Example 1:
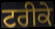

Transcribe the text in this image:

ਟਰੀਕੇ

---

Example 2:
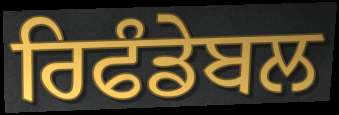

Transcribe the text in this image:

ਰਿਫੰਡੇਬਲ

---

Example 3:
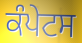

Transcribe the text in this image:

ਕੰਪੇਟਸ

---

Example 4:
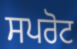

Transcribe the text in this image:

ਸਪਰੋਟ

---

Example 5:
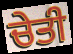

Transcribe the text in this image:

ਚੇਤੀ